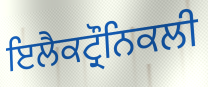
ਇਲੈਕਟ੍ਰੌਨਿਕਲੀ